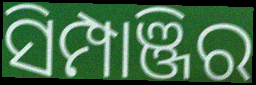
ସିମ୍ପାଞ୍ଜିର